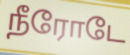
நீரோடே